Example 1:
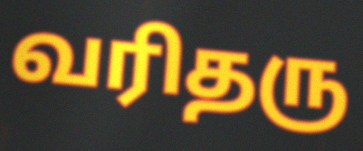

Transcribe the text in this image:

வரிதரு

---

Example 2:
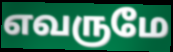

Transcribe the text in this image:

எவருமே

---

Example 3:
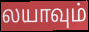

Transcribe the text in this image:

லயாவும்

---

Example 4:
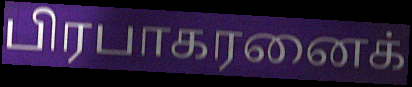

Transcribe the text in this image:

பிரபாகரனைக்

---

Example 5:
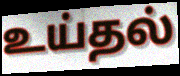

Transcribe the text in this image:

உய்தல்